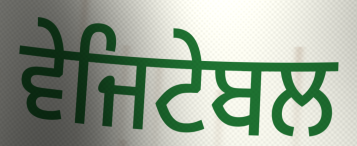
ਵੇਜਿਟੇਬਲ